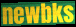
newbks